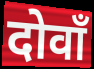
दोवाँ